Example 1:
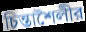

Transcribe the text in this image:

চিন্তাশৈলীর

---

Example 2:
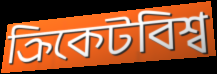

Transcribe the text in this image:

ক্রিকেটবিশ্ব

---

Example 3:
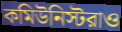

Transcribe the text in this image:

কমিউনিস্টরাও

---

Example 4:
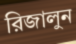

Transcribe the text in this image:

রিজালুন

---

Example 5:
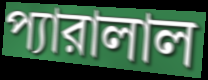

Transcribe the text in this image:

প্যারালাল